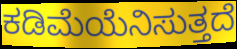
ಕಡಿಮೆಯೆನಿಸುತ್ತದೆ